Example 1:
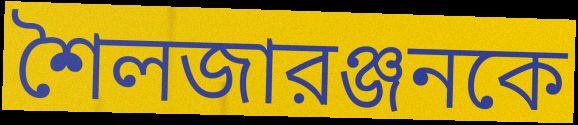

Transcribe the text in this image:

শৈলজারঞ্জনকে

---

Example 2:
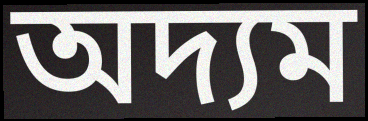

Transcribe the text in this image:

অদ্যম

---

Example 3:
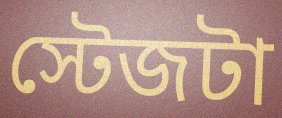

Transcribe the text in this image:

স্টেজটা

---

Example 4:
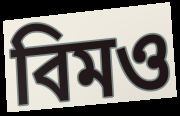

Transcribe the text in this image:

বিমও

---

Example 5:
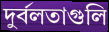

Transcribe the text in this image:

দুর্বলতাগুলি